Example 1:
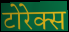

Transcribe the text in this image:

टोरेक्स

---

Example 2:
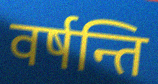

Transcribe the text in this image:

वर्षन्ति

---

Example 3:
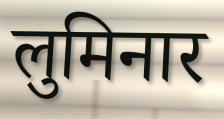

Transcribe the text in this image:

लुमिनार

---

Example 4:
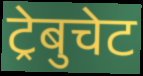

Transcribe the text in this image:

ट्रेबुचेट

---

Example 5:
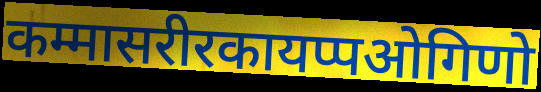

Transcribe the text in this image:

कम्मासरीरकायप्पओगिणो